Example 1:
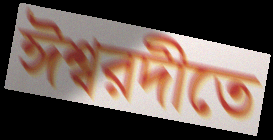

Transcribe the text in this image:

ঈশ্বরদীতে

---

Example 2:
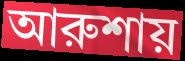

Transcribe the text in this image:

আরুশায়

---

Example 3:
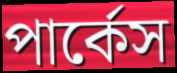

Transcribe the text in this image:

পার্কেস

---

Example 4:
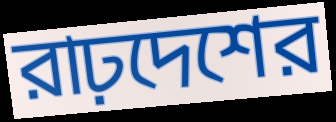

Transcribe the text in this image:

রাঢ়দেশের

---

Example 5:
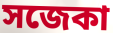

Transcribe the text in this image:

সজেকা